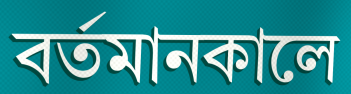
বর্তমানকালে